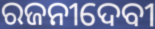
ରଜନୀଦେବୀ